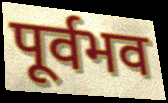
पूर्वभव